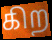
கிற